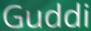
Guddi